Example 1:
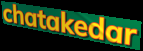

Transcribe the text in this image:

chatakedar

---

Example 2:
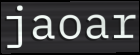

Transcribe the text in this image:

jaoar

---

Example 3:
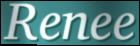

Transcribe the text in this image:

Renee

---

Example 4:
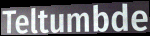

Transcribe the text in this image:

Teltumbde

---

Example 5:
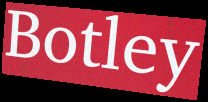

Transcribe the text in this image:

Botley